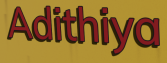
Adithiya